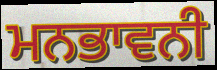
ਮਨਭਾਵਨੀ